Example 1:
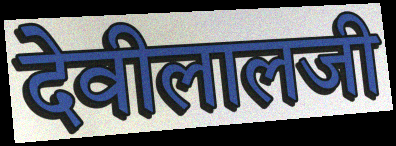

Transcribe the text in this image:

देवीलालजी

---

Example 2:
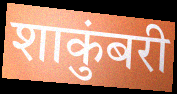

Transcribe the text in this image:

शाकुंबरी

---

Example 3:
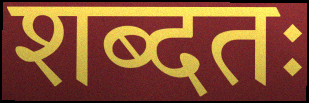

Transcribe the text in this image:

शब्दतः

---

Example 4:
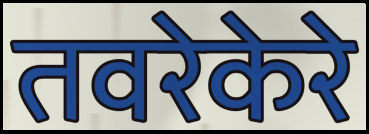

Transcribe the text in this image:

तवरेकेरे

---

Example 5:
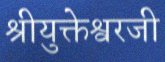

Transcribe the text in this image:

श्रीयुक्तेश्वरजी